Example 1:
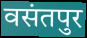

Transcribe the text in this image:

वसंतपुर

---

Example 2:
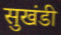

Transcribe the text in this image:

सुखंडी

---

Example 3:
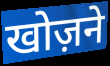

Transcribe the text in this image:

खोज़ने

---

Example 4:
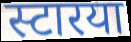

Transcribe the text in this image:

स्टारया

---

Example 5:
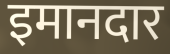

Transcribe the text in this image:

इमानदार